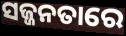
ସଜ୍ଜନତାରେ